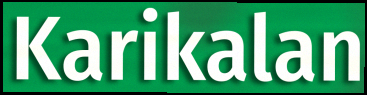
Karikalan